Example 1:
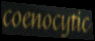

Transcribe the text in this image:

coenocytic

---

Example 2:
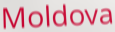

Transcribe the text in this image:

Moldova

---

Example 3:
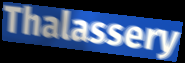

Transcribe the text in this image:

Thalassery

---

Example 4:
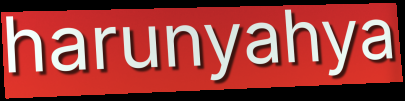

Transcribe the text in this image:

harunyahya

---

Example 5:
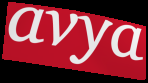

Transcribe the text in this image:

avya